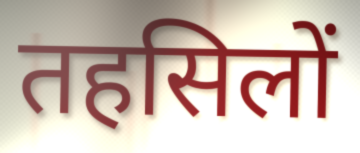
तहसिलों